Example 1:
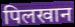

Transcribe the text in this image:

पिलखान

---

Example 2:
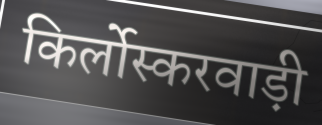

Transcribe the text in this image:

किर्लोस्करवाड़ी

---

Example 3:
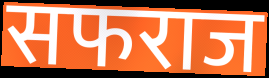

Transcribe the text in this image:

सफराज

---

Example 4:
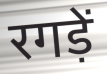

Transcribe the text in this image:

रगड़ें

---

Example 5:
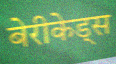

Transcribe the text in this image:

बेरीकेड्स